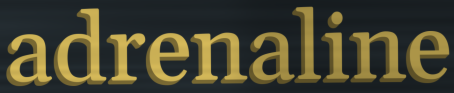
adrenaline